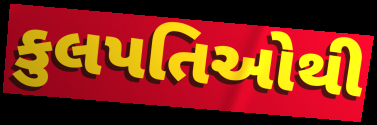
કુલપતિઓથી